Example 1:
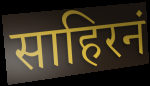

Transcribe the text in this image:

साहिरनं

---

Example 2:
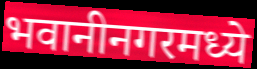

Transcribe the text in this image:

भवानीनगरमध्ये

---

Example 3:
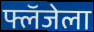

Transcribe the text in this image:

फ्लॅजेला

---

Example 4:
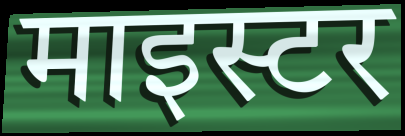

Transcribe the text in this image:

माइस्टर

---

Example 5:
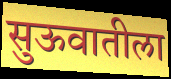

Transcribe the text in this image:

सुऊवातीला